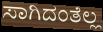
ಸಾಗಿದಂತೆಲ್ಲ